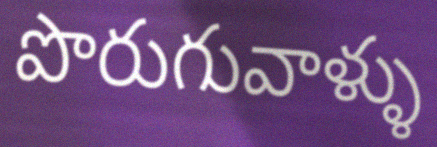
పొరుగువాళ్ళు